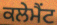
ਕਲੇਮੈਂਟ